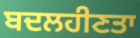
ਬਦਲਹੀਣਤਾ